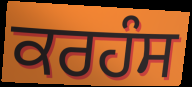
ਕਰਹੰਸ